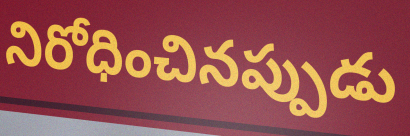
నిరోధించినప్పుడు